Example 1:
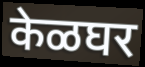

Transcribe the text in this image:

केळघर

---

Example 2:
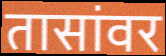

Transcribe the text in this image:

तासांवर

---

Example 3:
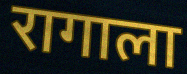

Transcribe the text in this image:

रागाला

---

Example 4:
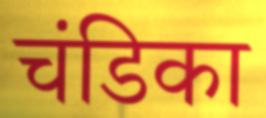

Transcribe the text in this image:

चंडिका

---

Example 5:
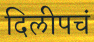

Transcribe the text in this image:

दिलीपचं